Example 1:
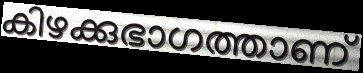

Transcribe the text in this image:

കിഴക്കുഭാഗത്താണ്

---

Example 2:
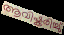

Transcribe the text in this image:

ആവിഷ്കരിച്ചു്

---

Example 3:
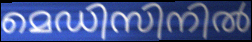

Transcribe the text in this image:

മെഡിസിനിൽ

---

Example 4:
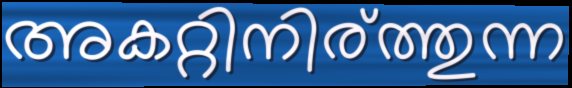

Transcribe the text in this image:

അകറ്റിനിര്ത്തുന്ന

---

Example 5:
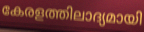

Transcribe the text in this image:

കേരളത്തിലാദ്യമായി